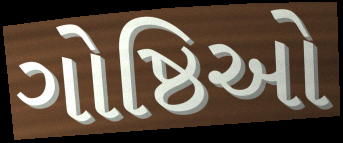
ગોષ્ઠિઓ